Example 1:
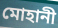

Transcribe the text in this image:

মোহানী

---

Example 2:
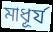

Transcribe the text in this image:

মাধূর্য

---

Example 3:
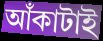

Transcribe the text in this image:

আঁকাটাই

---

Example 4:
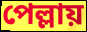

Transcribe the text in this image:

পেল্লায়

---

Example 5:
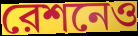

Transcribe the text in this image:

রেশনেও